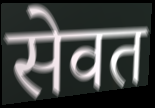
सेवत